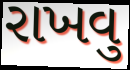
રાખવુ